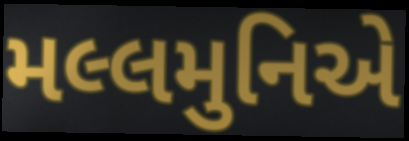
મલ્લમુનિએ